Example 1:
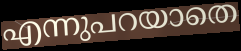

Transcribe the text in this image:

എന്നുപറയാതെ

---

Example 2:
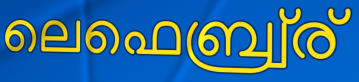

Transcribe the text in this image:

ലെഫെബ്ര്വ്ര്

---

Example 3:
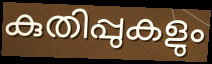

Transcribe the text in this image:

കുതിപ്പുകളും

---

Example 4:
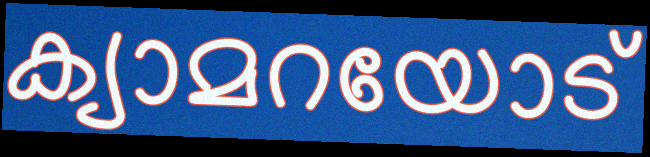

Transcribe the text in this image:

ക്യാമറയോട്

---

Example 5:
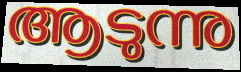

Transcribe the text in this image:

ആടുന്നു